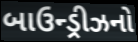
બાઉન્ડ્રીઝનો